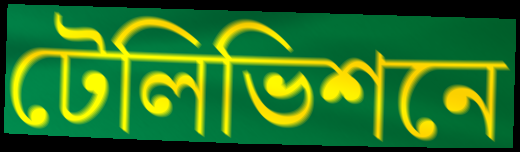
টেলিভিশনে